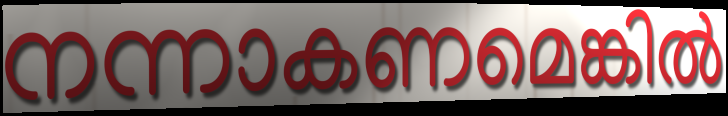
നന്നാകണമെങ്കിൽ